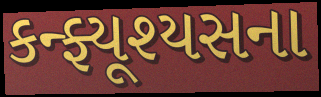
કન્ફ્યૂશ્યસના